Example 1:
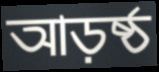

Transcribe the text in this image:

আড়ষ্ঠ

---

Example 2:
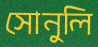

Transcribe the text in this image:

সোনুলি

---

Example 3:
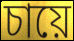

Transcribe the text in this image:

চায়ে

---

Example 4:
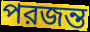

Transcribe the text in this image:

পরজন্ত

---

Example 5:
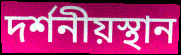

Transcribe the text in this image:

দর্শনীয়স্থান